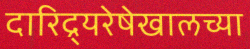
दारिद्र्यरेषेखालच्या